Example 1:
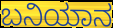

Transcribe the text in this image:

ಬನಿಯಾನ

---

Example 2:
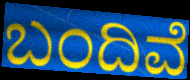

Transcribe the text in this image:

ಬಂದಿವೆ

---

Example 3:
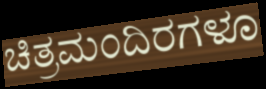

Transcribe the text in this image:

ಚಿತ್ರಮಂದಿರಗಳೂ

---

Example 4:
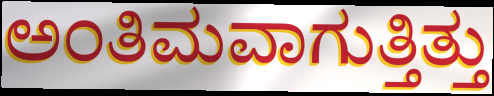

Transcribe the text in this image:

ಅಂತಿಮವಾಗುತ್ತಿತ್ತು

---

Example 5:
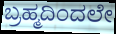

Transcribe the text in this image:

ಬ್ರಹ್ಮದಿಂದಲೇ